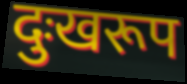
दुःखरूप